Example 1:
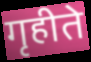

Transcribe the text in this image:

गृहीते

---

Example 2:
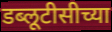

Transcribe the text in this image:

डब्लूटीसीच्या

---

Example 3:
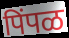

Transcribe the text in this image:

पिंपळ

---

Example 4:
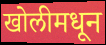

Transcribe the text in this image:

खोलीमधून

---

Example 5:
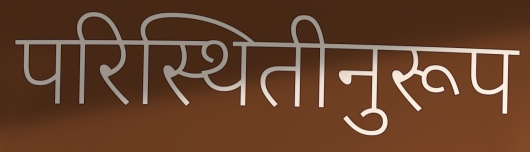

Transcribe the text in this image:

परिस्थितीनुरूप